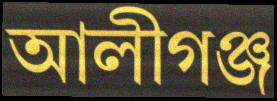
আলীগঞ্জ